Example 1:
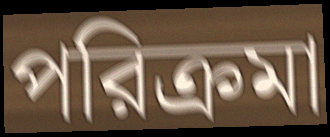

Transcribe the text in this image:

পরিক্রমা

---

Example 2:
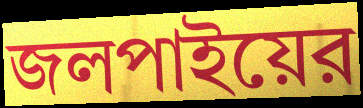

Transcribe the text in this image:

জলপাইয়ের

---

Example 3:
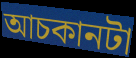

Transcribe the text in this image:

আচকানটা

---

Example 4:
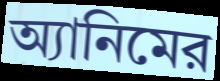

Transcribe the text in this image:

অ্যানিমের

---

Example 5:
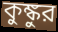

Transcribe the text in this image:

কুঙ্কুর